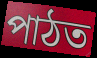
পাঠত